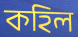
কহিল